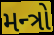
મન્ત્રો